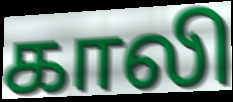
காலி